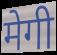
मेगी